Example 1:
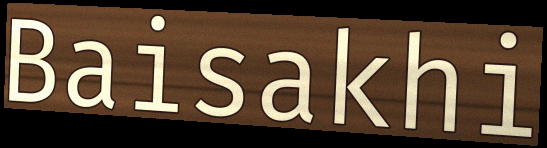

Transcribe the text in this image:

Baisakhi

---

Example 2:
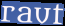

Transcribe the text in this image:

raut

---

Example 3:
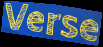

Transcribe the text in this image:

Verse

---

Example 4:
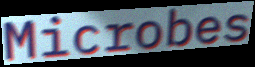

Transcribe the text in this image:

Microbes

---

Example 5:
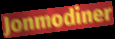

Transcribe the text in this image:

Jonmodiner